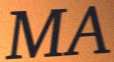
MA